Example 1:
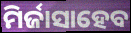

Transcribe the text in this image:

ମିର୍ଜାସାହେବ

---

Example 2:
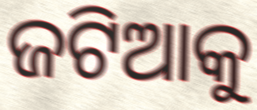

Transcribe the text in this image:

ଜଟିଆକୁ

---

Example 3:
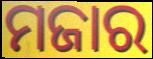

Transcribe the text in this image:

ମଜାର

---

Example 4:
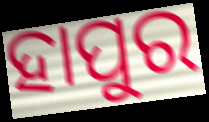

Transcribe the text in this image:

ହାପୁର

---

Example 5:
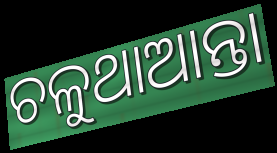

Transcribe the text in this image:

ଚଳୁଥାଆନ୍ତା